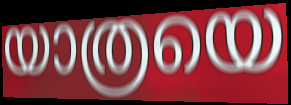
യാത്രയെ